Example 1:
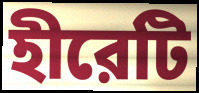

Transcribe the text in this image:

হীরেটি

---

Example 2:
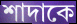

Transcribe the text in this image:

শাদাকে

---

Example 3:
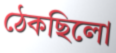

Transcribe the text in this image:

ঠেকছিলো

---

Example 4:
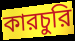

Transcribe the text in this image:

কারচুরি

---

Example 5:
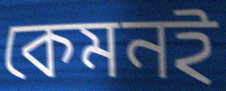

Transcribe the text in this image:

কেমনই